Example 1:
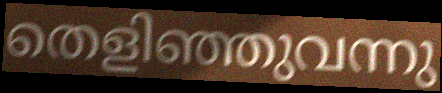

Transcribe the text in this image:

തെളിഞ്ഞുവന്നു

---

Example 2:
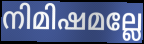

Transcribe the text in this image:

നിമിഷമല്ലേ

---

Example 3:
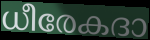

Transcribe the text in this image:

ധീരേകദാ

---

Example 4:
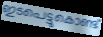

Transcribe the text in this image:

ഇടപെട്ടുകൊണ്ട്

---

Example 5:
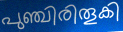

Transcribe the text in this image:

പുഞ്ചിരിതൂകി